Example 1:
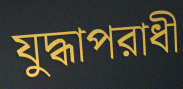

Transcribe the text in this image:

যুদ্ধাপরাধী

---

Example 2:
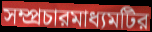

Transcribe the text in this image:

সম্প্রচারমাধ্যমটির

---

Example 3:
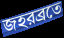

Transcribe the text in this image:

জহরব্রতে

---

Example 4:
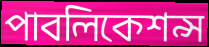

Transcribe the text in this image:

পাবলিকেশন্স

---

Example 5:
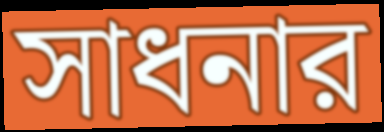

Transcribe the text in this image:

সাধনার